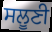
ਸਲੂਣੀ